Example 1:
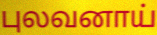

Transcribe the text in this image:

புலவனாய்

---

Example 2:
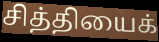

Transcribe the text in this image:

சித்தியைக்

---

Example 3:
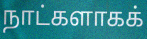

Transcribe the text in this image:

நாட்களாகக்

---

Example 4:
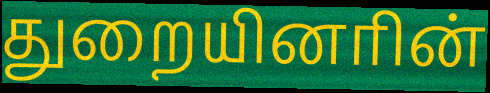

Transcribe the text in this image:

துறையினரின்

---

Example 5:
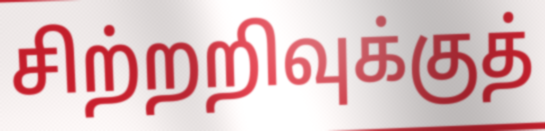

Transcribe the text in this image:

சிற்றறிவுக்குத்